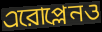
এরোপ্লেনও